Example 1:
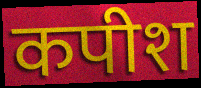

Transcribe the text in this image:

कपीश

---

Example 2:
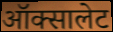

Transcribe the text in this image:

ऑक्सालेट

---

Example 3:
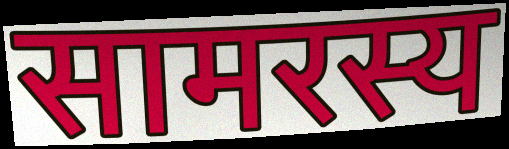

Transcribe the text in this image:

सामरस्य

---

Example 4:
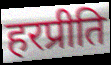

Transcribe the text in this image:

हरप्रीति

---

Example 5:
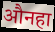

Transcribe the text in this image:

औनहा